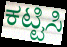
ಕಟ್ಟಿಸಿ